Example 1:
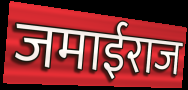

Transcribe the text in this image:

जमाईराज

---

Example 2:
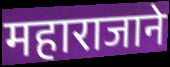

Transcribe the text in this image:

महाराजाने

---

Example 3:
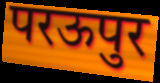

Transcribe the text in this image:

परऊपुर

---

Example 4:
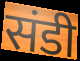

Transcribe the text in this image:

संडी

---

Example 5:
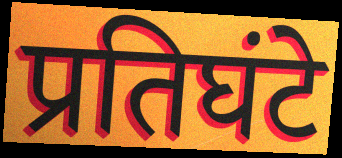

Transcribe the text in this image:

प्रतिघंटे